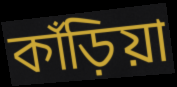
কাঁড়িয়া